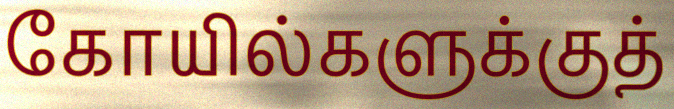
கோயில்களுக்குத்